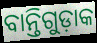
ବାନ୍ତିଗୁଡ଼ାକ